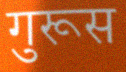
गुरूस